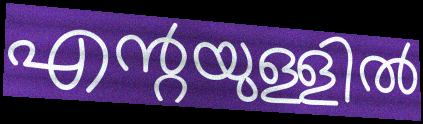
എന്റയുള്ളിൽ